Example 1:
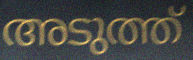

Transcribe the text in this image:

അടുത്ത്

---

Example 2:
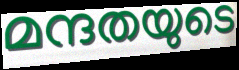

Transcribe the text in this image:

മന്ദതയുടെ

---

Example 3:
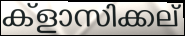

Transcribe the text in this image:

ക്ളാസിക്കല്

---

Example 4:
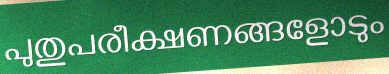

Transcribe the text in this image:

പുതുപരീക്ഷണങ്ങളോടും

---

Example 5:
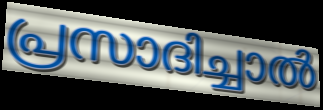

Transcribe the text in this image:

പ്രസാദിച്ചാൽ